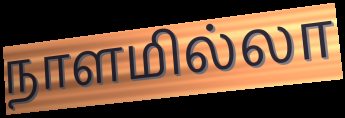
நாளமில்லா